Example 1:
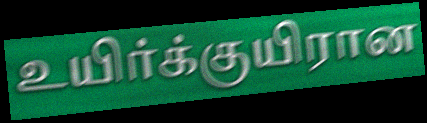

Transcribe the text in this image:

உயிர்க்குயிரான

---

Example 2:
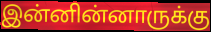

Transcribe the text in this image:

இன்னின்னாருக்கு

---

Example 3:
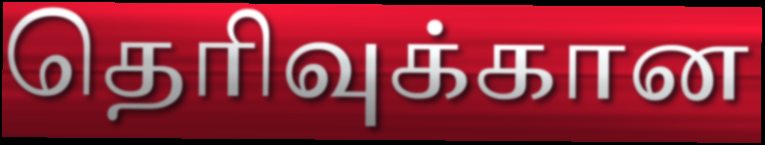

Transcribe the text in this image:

தெரிவுக்கான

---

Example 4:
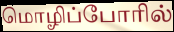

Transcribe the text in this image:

மொழிப்போரில்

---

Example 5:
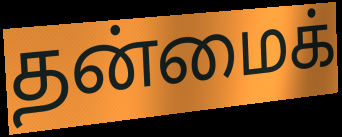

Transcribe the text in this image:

தன்மைக்